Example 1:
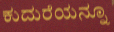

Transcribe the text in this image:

ಕುದುರೆಯನ್ನೂ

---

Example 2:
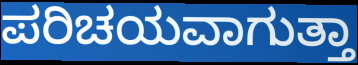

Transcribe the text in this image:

ಪರಿಚಯವಾಗುತ್ತಾ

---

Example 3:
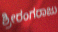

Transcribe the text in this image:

ಶ್ರೀರಂಗರಾಜು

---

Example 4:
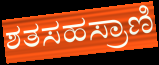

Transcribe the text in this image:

ಶತಸಹಸ್ರಾಣಿ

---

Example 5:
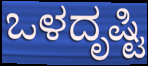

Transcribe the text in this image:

ಒಳದೃಷ್ಟಿ